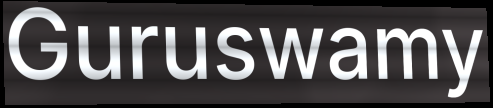
Guruswamy